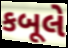
કબૂલે